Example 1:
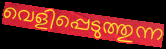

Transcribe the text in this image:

വെളിപ്പെടുത്തുന്ന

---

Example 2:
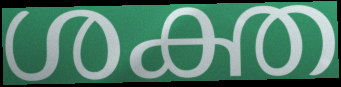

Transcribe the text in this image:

ശക്ത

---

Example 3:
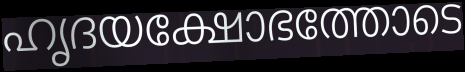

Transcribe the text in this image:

ഹൃദയക്ഷോഭത്തോടെ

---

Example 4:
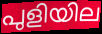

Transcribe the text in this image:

പുളിയില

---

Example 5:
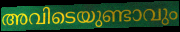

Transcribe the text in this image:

അവിടെയുണ്ടാവും